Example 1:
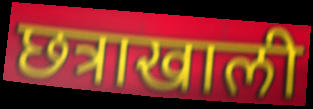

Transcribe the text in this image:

छत्राखाली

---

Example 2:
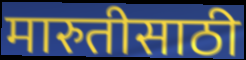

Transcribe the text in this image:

मारुतीसाठी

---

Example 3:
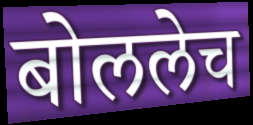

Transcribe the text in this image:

बोललेच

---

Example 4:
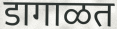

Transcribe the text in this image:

डागाळत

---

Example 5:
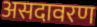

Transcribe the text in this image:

असदावरण